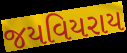
જયવિયરાય